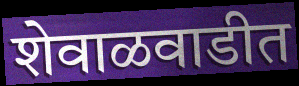
शेवाळवाडीत